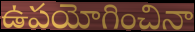
ఉపయోగించినా